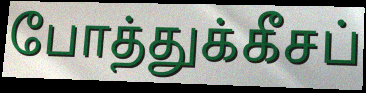
போத்துக்கீசப்